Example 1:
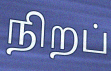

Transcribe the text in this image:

நிறப்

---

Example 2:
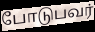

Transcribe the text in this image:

போடுபவர்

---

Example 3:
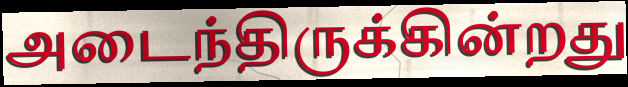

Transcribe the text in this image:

அடைந்திருக்கின்றது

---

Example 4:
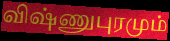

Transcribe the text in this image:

விஷ்ணுபுரமும்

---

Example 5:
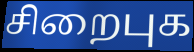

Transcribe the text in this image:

சிறைபுக